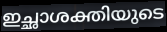
ഇച്ഛാശക്തിയുടെ